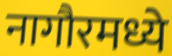
नागौरमध्ये